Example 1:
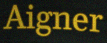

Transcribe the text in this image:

Aigner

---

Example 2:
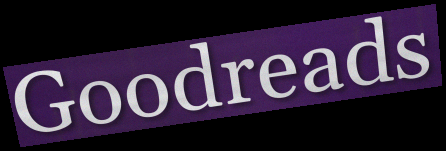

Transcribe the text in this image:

Goodreads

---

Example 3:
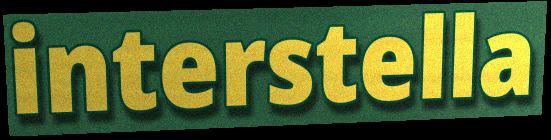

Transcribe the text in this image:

interstella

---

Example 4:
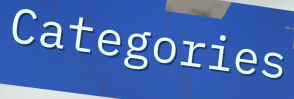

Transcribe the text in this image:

Categories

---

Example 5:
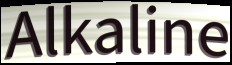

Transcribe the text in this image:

Alkaline